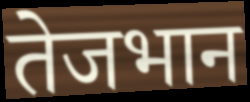
तेजभान